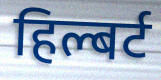
हिल्बर्ट